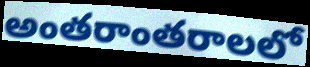
అంతరాంతరాలలో